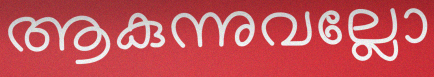
ആകുന്നുവല്ലോ